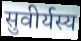
सुवीर्यस्य